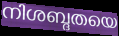
നിശബ്ദതയെ